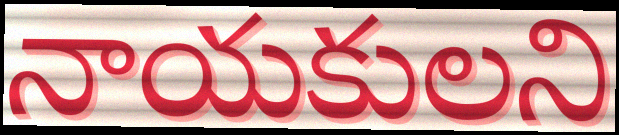
నాయకులని